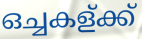
ഒച്ചകള്ക്ക്